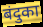
बंदुका